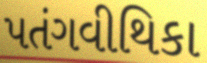
પતંગવીથિકા